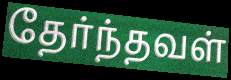
தேர்ந்தவள்